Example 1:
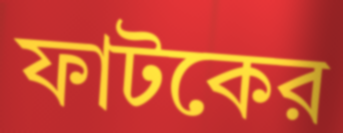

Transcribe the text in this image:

ফাটকের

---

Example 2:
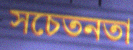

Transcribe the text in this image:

সচেতনতা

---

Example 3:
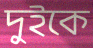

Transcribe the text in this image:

দুইকে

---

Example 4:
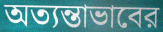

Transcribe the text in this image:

অত্যন্তাভাবের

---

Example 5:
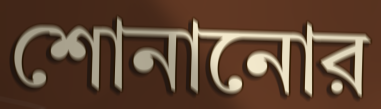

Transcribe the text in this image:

শোনানোর